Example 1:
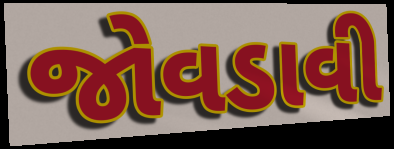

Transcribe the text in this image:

જોવડાવી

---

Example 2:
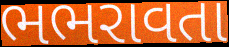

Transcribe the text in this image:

ભભરાવતા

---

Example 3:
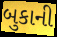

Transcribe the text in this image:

બુકાની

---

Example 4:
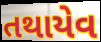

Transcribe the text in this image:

તથાયેવ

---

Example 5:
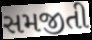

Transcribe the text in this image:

સમજીતી